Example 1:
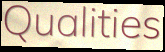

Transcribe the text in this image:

Qualities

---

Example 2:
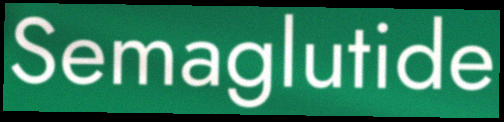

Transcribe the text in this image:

Semaglutide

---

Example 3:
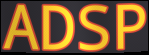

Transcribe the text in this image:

ADSP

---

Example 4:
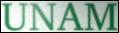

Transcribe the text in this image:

UNAM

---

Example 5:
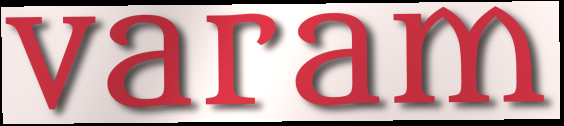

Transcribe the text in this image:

varam